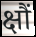
क्षौं